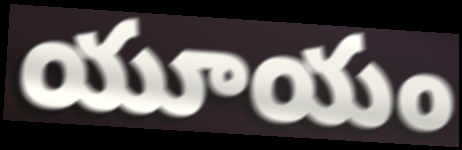
యూయం